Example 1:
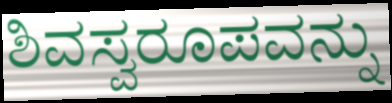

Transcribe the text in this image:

ಶಿವಸ್ವರೂಪವನ್ನು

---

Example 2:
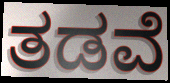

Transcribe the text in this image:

ತಡವೆ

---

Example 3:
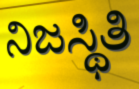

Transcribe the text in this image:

ನಿಜಸ್ಥಿತಿ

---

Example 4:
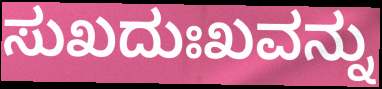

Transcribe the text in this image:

ಸುಖದುಃಖವನ್ನು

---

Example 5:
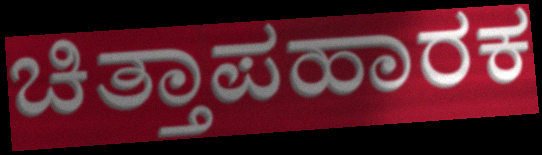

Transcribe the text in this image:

ಚಿತ್ತಾಪಹಾರಕ